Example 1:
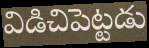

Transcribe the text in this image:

విడిచిపెట్టడు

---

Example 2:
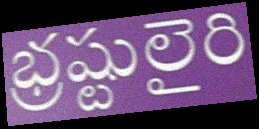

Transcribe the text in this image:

భ్రష్టులైరి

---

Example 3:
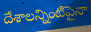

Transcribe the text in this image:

దేశాలన్నింటిపైనా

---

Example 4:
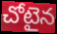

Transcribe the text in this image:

చోటైన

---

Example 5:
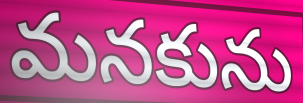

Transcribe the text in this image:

మనకును